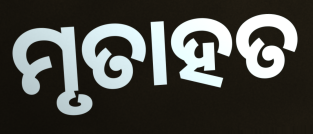
ମୃତାହତ